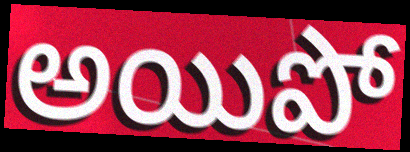
అయిపో